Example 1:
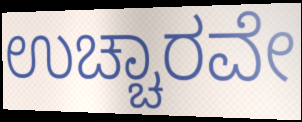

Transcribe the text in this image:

ಉಚ್ಚಾರವೇ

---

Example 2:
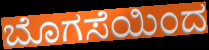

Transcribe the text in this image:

ಬೊಗಸೆಯಿಂದ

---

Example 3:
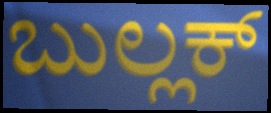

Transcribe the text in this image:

ಬುಲ್ಲಕ್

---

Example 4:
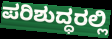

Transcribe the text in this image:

ಪರಿಶುದ್ಧರಲ್ಲಿ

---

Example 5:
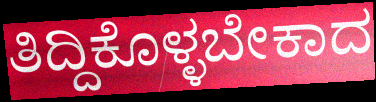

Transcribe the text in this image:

ತಿದ್ದಿಕೊಳ್ಳಬೇಕಾದ